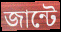
জান্টে